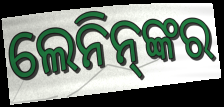
ଲେନିନ୍‌ଙ୍କର